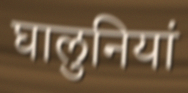
घालुनियां